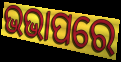
ଭଭାପରେ